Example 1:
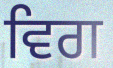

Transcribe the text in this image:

ਵਿਗ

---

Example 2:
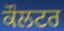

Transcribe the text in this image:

ਕੌਲਟਰ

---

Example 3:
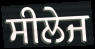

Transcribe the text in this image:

ਸੀਲੇਜ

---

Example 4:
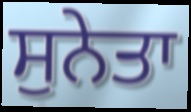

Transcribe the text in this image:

ਸੁਨੇਤਾ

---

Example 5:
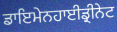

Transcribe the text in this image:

ਡਾਇਮੇਨਹਾਈਡ੍ਰੀਨੇਟ